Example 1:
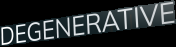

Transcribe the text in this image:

DEGENERATIVE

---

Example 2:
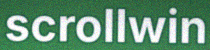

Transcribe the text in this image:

scrollwin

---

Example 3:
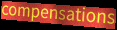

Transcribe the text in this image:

compensations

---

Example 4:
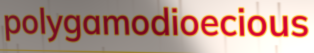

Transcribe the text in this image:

polygamodioecious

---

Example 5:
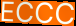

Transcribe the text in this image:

ECCC